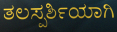
ತಲಸ್ಪರ್ಶಿಯಾಗಿ